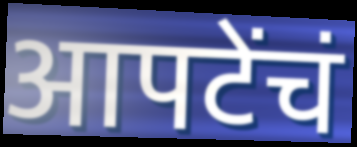
आपटेंचं